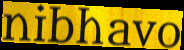
nibhavo